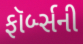
ફૉર્બ્સની